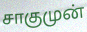
சாகுமுன்